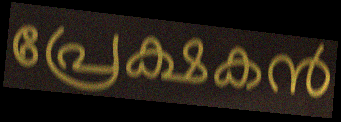
പ്രേക്ഷകൻ